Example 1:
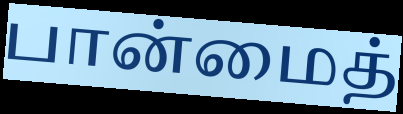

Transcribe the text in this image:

பான்மைத்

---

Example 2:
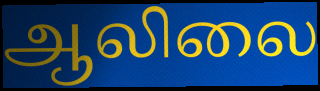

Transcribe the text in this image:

ஆலிலை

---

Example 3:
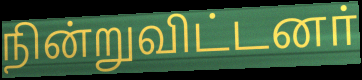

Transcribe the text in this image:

நின்றுவிட்டனர்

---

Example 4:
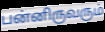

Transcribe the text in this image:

பன்னிருவரும்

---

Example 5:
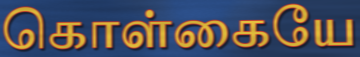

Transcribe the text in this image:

கொள்கையே